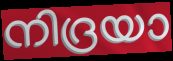
നിദ്രയാ